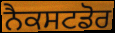
ਨੈਕਸਟਡੋਰ